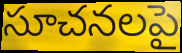
సూచనలపై